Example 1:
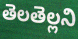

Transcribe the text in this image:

తెలతెల్లని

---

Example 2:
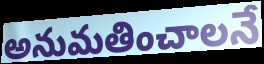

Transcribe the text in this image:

అనుమతించాలనే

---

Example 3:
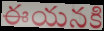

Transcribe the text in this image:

ఈయనకి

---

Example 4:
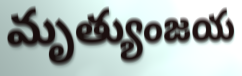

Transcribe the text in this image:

మృత్యుంజయ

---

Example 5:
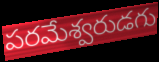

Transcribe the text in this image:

పరమేశ్వరుడగు